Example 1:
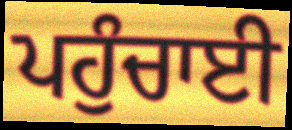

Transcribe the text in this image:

ਪਹੁੰਚਾਈ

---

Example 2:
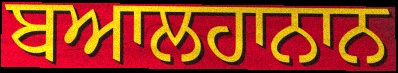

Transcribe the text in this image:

ਬਆਲਹਾਨਾਨ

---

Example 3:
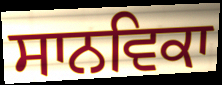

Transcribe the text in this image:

ਸਾਨਵਿਕਾ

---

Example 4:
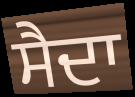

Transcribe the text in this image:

ਸੈਦਾ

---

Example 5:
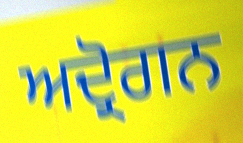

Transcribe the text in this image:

ਅਦ੍ਰੋਗਨ